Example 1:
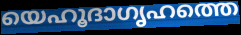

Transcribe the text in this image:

യെഹൂദാഗൃഹത്തെ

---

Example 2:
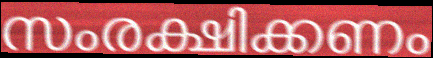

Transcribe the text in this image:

സംരക്ഷിക്കണം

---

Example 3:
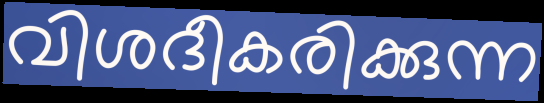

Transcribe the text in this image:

വിശദീകരിക്കുന്ന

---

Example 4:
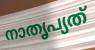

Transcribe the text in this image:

നാതൃപ്യത്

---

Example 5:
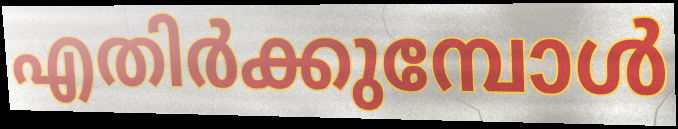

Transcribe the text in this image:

എതിർക്കുമ്പോൾ